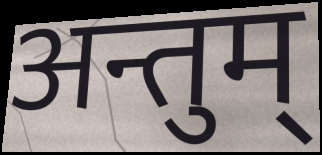
अन्तुम्